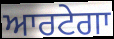
ਆਰਟੇਗਾ